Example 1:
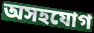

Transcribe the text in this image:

অসহযোগ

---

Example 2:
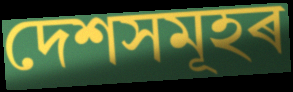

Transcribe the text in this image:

দেশসমূহৰ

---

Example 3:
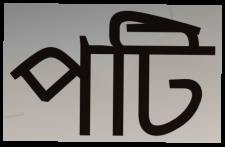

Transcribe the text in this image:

পটি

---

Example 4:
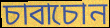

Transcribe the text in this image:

চাবাচোন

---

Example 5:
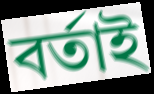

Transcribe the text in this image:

বৰ্তাই